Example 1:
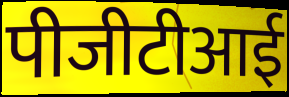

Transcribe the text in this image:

पीजीटीआई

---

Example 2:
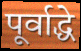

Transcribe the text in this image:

पूर्वाद्धे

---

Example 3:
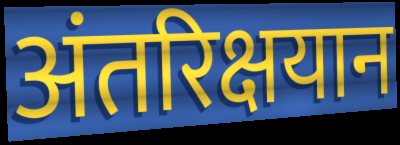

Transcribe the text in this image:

अंतरिक्षयान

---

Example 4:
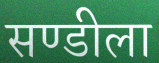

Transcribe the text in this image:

सण्डीला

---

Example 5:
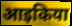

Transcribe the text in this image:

आइकिया